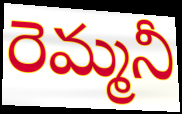
రెమ్మనీ